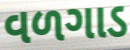
વળગાડ